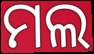
ମଲ